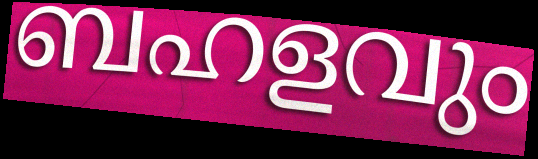
ബഹളവും